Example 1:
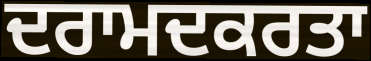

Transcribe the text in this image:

ਦਰਾਮਦਕਰਤਾ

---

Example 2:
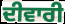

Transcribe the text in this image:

ਦੀਵਾਰੀ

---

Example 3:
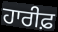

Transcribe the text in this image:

ਹਾਰੀਫ਼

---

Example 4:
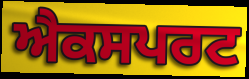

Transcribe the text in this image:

ਐਕਸਪਰਟ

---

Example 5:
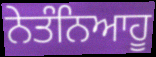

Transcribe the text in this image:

ਨੇਤੰਨਿਆਹੂ